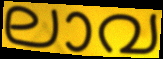
ലാവ